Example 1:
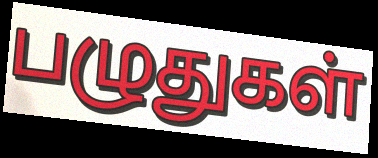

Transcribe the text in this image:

பழுதுகள்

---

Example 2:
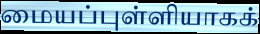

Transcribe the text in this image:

மையப்புள்ளியாகக்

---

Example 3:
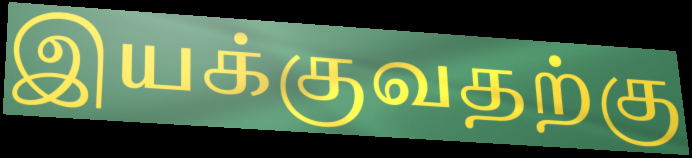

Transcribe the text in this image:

இயக்குவதற்கு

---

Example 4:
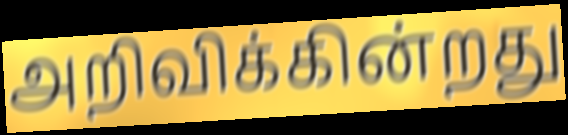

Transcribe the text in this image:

அறிவிக்கின்றது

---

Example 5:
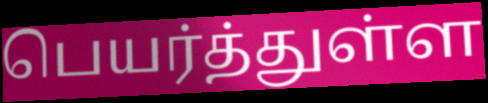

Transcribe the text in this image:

பெயர்த்துள்ள